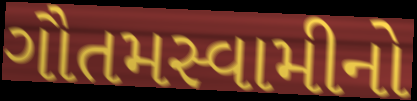
ગૌતમસ્વામીનો